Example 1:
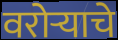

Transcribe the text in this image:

वरोऱ्याचे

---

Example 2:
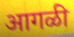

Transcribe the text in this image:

आगळी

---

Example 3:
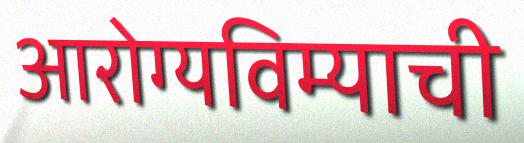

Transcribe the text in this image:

आरोग्यविम्याची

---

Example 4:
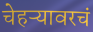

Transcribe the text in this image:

चेहऱ्यावरचं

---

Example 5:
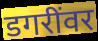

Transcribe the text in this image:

डगरींवर